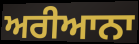
ਅਰੀਆਨਾ